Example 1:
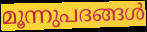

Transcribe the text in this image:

മൂന്നുപദങ്ങൾ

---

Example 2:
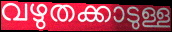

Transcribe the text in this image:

വഴുതക്കാടുള്ള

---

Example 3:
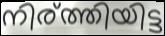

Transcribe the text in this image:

നിര്ത്തിയിട്ട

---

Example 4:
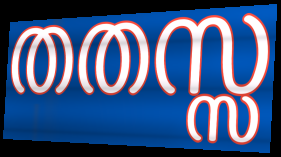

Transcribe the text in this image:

തതസ്സ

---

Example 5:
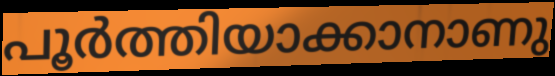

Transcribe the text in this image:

പൂർത്തിയാക്കാനാണു